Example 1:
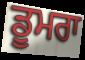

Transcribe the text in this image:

ਡੂਮਰਾ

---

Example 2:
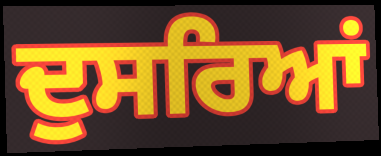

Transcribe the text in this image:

ਦੁਸਰਿਆਂ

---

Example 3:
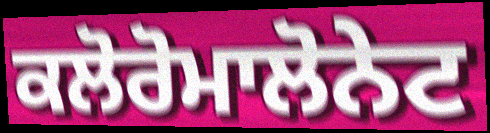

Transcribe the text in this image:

ਕਲੋਰੋਮਾਲੋਨੇਟ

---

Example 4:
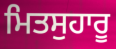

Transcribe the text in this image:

ਮਿਤਸੁਹਾਰੂ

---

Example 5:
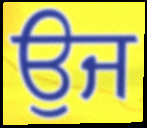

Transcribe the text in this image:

ਉਜ